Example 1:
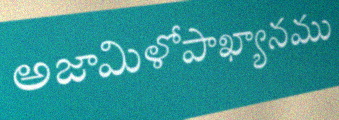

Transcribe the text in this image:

అజామిళోపాఖ్యానము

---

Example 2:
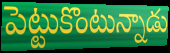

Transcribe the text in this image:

పెట్టుకొంటున్నాడు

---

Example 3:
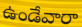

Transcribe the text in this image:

ఉండేవారా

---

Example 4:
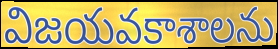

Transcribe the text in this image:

విజయవకాశాలను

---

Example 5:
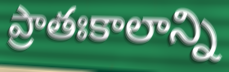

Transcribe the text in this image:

ప్రాతఃకాలాన్ని